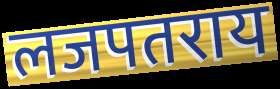
लजपतराय